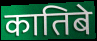
कातिबे